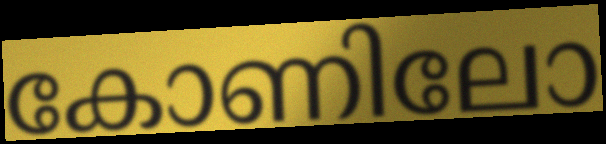
കോണിലോ